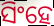
ସିଂହେ